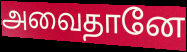
அவைதானே